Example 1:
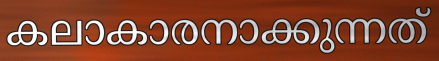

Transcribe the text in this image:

കലാകാരനാക്കുന്നത്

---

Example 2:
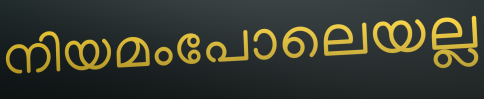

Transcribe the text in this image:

നിയമംപോലെയല്ല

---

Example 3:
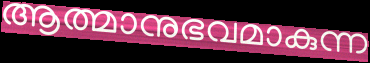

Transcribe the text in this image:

ആത്മാനുഭവമാകുന്ന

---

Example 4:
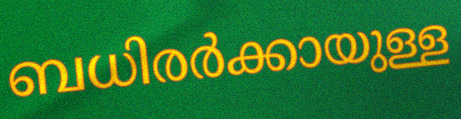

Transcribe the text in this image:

ബധിരർക്കായുള്ള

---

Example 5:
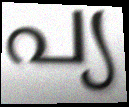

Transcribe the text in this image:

പ്യ